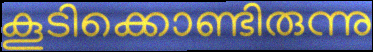
കൂടിക്കൊണ്ടിരുന്നു